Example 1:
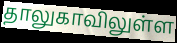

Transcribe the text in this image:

தாலுகாவிலுள்ள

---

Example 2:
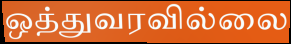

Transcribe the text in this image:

ஒத்துவரவில்லை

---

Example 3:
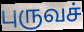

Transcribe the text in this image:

புருவச்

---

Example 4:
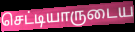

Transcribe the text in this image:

செட்டியாருடைய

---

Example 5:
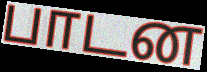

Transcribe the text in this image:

பாடன